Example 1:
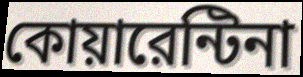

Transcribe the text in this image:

কোয়ারেন্টিনা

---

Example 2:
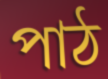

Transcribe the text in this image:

পাঠ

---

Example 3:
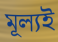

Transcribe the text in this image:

মূল্যই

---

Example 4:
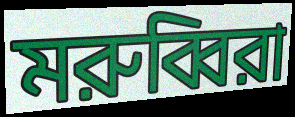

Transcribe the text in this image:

মরুব্বিরা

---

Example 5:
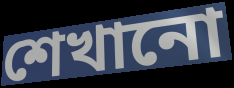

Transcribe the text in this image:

শেখানো